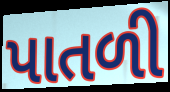
પાતળી